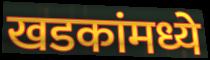
खडकांमध्ये